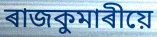
ৰাজকুমাৰীয়ে